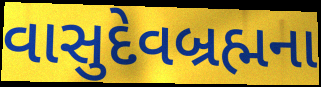
વાસુદેવબ્રહ્મના